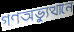
গণঅভ্যুত্থানে